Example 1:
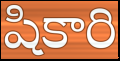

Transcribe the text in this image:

షికారి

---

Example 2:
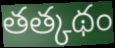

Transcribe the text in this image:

తత్కథం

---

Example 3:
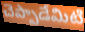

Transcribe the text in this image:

చెప్పాడేమిటి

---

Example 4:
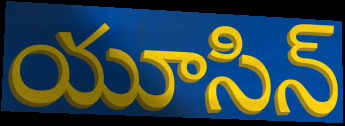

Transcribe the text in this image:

యూసిన్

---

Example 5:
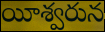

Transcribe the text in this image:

యీశ్వరున